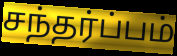
சந்தர்ப்பம்